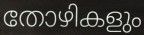
തോഴികളും